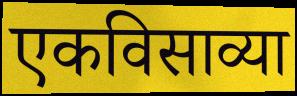
एकविसाव्या